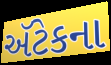
ઍટેકના